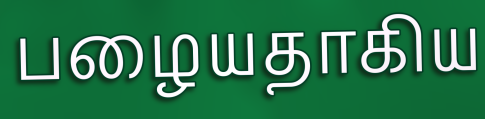
பழையதாகிய